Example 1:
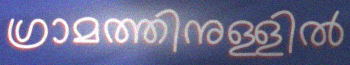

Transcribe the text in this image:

ഗ്രാമത്തിനുള്ളിൽ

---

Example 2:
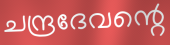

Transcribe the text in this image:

ചന്ദ്രദേവന്റെ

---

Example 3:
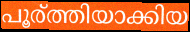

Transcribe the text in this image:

പൂര്ത്തിയാക്കിയ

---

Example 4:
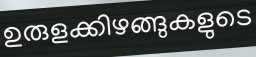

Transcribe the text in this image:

ഉരുളക്കിഴങ്ങുകളുടെ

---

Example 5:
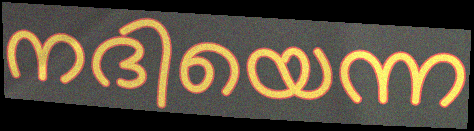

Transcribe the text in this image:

നദിയെന്ന